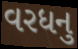
વરધનુ